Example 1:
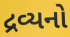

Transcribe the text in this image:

દ્રવ્યનો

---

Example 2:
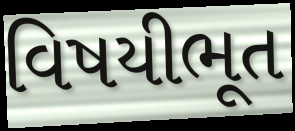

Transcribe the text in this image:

વિષયીભૂત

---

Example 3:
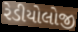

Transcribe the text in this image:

રેડીયોલોજી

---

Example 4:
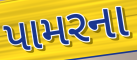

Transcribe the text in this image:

પામરના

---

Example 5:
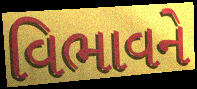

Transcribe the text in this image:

વિભાવને